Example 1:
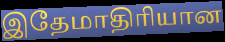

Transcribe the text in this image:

இதேமாதிரியான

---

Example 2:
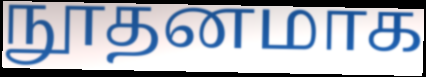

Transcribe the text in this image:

நூதனமாக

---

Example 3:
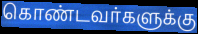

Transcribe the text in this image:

கொண்டவர்களுக்கு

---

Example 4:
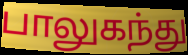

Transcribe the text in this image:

பாலுகந்து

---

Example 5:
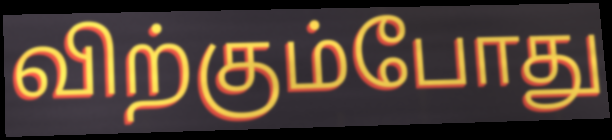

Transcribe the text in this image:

விற்கும்போது